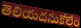
తెలియదనుకోలేం